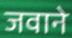
जवाने